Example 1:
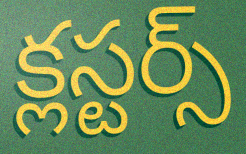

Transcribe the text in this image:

క్లస్టర్స్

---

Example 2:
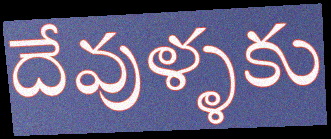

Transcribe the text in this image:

దేవుళ్ళకు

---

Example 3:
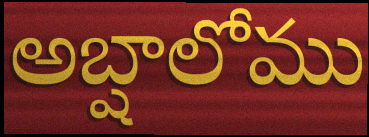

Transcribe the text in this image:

అబ్షాలోము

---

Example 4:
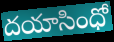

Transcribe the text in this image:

దయాసింధో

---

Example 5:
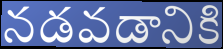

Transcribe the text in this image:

నడవడానికి